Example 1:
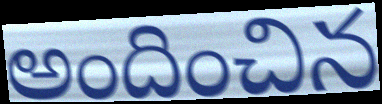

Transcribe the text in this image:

అందించిన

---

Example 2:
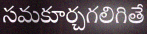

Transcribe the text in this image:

సమకూర్చగలిగితే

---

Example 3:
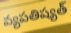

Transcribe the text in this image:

వ్యపతిష్యత్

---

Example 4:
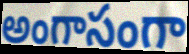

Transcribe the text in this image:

అంగాసంగా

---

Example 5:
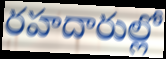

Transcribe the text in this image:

రహదారుల్లో